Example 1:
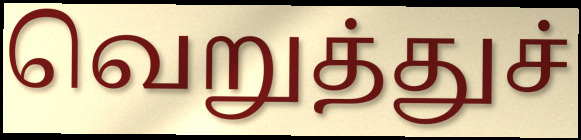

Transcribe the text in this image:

வெறுத்துச்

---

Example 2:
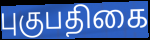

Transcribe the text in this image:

புகுபதிகை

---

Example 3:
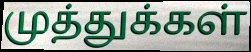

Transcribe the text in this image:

முத்துக்கள்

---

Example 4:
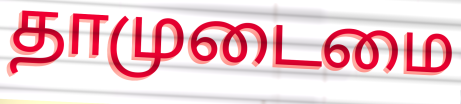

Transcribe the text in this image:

தாமுடைமை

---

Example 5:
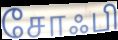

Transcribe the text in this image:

சோஃபி